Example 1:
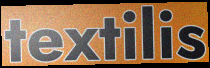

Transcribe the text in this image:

textilis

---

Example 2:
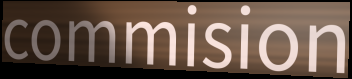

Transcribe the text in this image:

commision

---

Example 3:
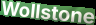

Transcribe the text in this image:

Wollstone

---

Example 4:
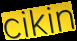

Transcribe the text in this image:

cikin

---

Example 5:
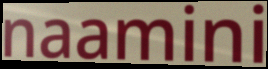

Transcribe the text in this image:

naamini